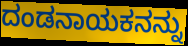
ದಂಡನಾಯಕನನ್ನು